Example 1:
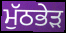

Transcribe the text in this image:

ਮੁੱਠਭੇੜ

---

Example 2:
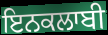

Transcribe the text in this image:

ਇਨਕਲਾਬੀ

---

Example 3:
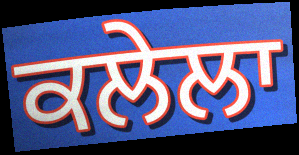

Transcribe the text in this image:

ਕਲੇਲਾ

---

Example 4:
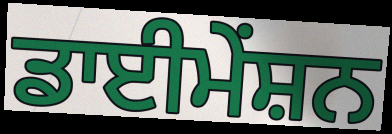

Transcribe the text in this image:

ਡਾਈਮੇਂਸ਼ਨ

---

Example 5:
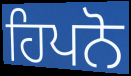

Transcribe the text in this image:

ਹਿਪਨੋ